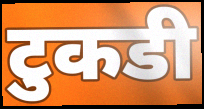
टुकडी